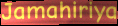
Jamahiriya